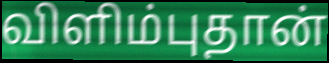
விளிம்புதான்